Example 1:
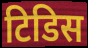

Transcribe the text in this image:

टिडिस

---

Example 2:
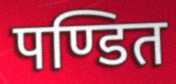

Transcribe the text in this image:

पण्डित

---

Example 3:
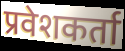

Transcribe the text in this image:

प्रवेशकर्ता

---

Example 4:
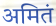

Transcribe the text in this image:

अमितं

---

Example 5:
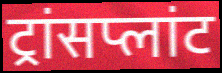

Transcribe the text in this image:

ट्रांसप्लांट